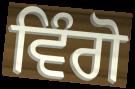
ਵਿੰਗੋ